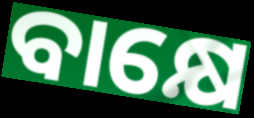
ବାକ୍ଷେ